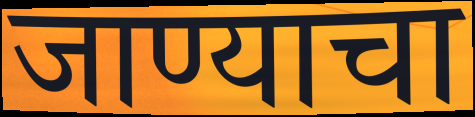
जाण्‍याचा